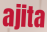
ajita